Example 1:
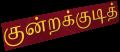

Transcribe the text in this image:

குன்றக்குடித்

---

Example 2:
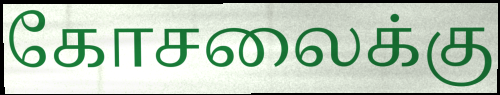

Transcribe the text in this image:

கோசலைக்கு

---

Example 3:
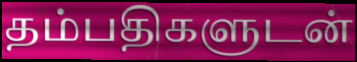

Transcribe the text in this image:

தம்பதிகளுடன்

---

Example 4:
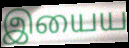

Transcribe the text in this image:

இயைய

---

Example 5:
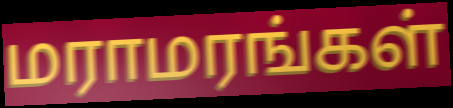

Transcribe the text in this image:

மராமரங்கள்